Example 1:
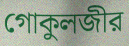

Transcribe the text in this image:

গোকুলজীর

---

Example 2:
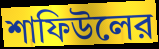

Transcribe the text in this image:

শাফিউলের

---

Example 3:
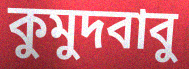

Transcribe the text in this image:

কুমুদবাবু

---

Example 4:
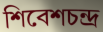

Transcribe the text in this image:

শিবেশচন্দ্র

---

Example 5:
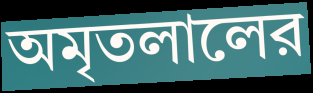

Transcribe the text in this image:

অমৃতলালের